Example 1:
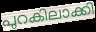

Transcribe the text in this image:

പുറകിലാക്കി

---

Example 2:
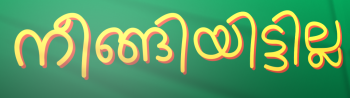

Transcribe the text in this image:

നീങ്ങിയിട്ടില്ല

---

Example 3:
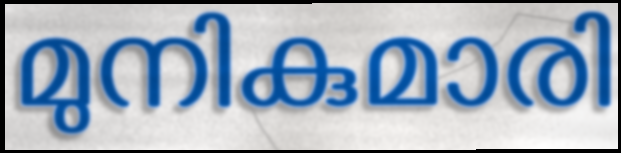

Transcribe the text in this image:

മുനികുമാരി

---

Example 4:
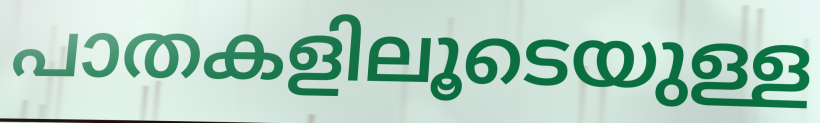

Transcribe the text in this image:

പാതകളിലൂടെയുള്ള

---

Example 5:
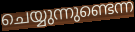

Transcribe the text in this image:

ചെയ്യുന്നുണ്ടെന്ന